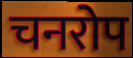
चनरोप